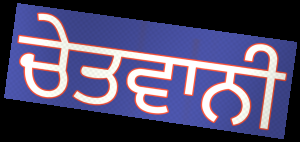
ਚੇਤਵਾਨੀ